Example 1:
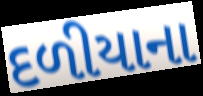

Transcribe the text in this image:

દળીયાના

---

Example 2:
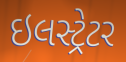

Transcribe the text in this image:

ઇલસ્ટ્રેટર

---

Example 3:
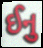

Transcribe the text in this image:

ઈનુ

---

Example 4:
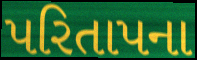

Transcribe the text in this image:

પરિતાપના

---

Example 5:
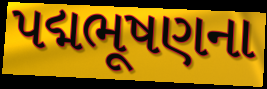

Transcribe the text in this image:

પદ્મભૂષણના